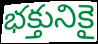
భక్తునికై